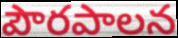
పౌరపాలన